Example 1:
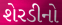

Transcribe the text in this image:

શેરડીનો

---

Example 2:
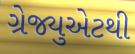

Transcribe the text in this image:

ગ્રેજ્યુએટથી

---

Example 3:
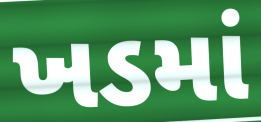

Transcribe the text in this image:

ખડમાં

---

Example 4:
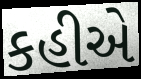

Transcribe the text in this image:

કહીએ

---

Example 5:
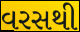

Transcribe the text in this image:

વરસથી